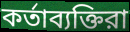
কর্তাব্যক্তিরা